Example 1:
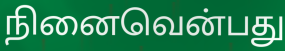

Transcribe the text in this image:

நினைவென்பது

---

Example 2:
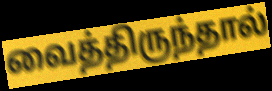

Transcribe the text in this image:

வைத்திருந்தால்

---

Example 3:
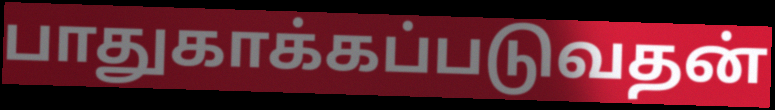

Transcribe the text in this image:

பாதுகாக்கப்படுவதன்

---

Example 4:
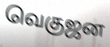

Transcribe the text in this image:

வெகுஜன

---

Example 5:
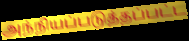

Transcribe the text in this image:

அந்நியப்படுத்தப்பட்ட